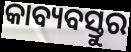
କାବ୍ୟବସ୍ତୁର